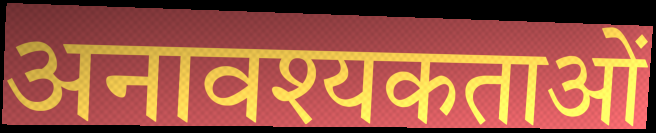
अनावश्यकताओं